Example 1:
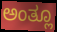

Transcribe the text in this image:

ಅಂತ್ಲೂ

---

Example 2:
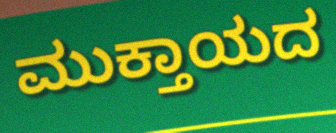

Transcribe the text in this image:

ಮುಕ್ತಾಯದ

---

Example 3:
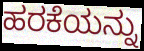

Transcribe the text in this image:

ಹರಕೆಯನ್ನು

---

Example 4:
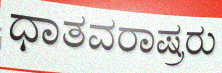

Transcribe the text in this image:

ಧಾತವರಾಷ್ರರು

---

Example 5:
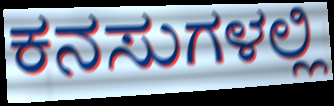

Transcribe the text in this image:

ಕನಸುಗಳಲ್ಲಿ